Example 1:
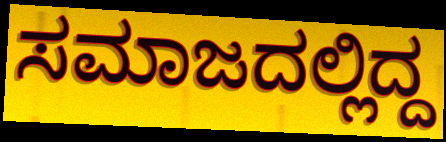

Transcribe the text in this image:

ಸಮಾಜದಲ್ಲಿದ್ದ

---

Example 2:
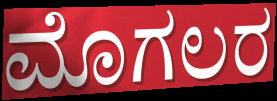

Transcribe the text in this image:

ಮೊಗಲರ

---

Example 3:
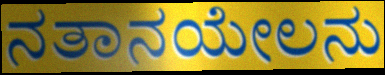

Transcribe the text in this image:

ನತಾನಯೇಲನು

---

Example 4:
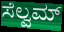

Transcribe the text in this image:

ಸೆಲ್ವಮ್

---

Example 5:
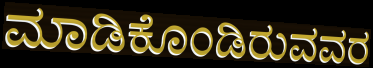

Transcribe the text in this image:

ಮಾಡಿಕೊಂಡಿರುವವರ